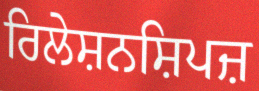
ਰਿਲੇਸ਼ਨਸ਼ਿਪਜ਼